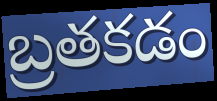
బ్రతకడం